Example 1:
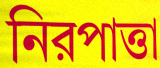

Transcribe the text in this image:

নিরপাত্তা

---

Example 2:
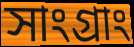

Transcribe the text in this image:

সাংগ্রাং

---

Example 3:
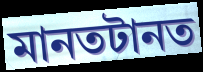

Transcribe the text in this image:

মানতটানত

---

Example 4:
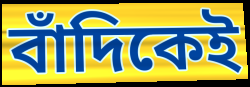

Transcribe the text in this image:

বাঁদিকেই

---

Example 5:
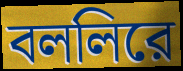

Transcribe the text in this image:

বললিরে